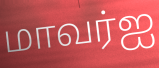
மாவர்ஐ